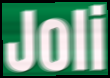
Joli